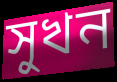
সুখন